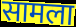
सामला